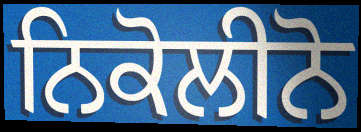
ਨਿਕੋਲੀਨੋ